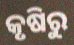
କୃଷିରୁ